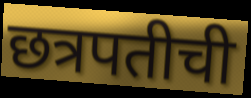
छत्रपतीची